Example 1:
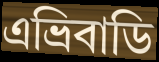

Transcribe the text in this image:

এভ্ৰিবাডি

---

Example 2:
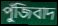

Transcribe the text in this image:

পুঁজিবাদ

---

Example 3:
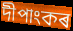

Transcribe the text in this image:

দীপাংকৰ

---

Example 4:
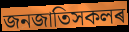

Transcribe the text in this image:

জনজাতিসকলৰ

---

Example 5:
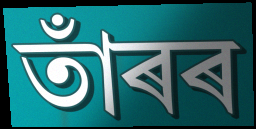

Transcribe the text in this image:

তাঁৰৰ